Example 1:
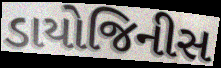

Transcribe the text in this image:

ડાયોજિનીસ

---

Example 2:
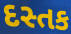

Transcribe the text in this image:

દસ્તક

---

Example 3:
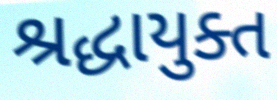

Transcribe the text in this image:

શ્રદ્ધાયુક્ત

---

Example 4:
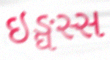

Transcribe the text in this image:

ઇઙ્ઘસ્સ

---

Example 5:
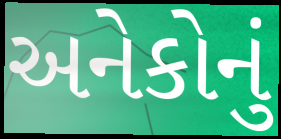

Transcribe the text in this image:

અનેકોનું